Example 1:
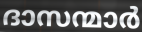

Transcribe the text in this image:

ദാസന്മാർ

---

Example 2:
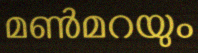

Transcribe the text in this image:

മൺമറയും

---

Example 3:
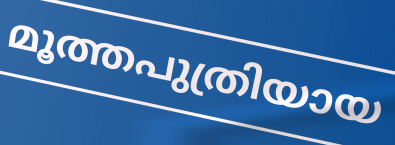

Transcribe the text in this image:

മൂത്തപുത്രിയായ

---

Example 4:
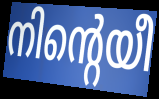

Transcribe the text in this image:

നിന്റെയീ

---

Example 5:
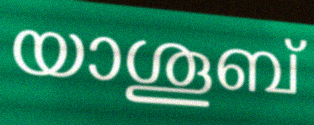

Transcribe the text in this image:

യാശൂബ്